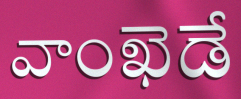
వాంఖెడే